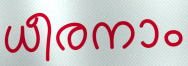
ധീരനാം